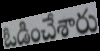
ఓడించేశారు